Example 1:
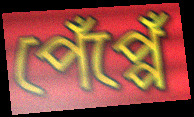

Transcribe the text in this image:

পেঁপ্পেঁ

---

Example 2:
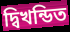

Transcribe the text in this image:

দ্বিখন্ডিত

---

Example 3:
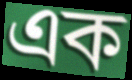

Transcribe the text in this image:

এক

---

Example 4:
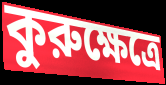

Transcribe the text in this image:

কুরুক্ষেত্রে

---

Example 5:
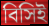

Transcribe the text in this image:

বিসিই